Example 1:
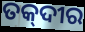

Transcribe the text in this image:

ତକ୍‌ଦୀର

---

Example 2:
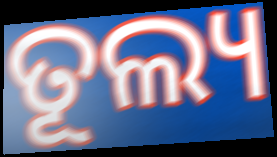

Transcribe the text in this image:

ତୂଲ୍ୟ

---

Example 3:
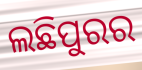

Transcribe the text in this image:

ଲଛିପୁରର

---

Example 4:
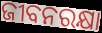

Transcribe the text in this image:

ଜୀବନରକ୍ଷା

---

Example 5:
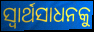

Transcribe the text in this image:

ସ୍ଵାର୍ଥସାଧନକୁ